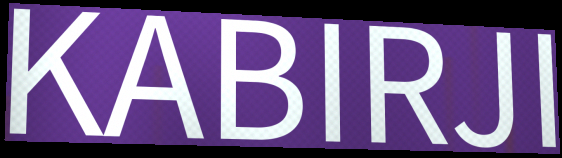
KABIRJI